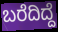
ಬರೆದಿದ್ದೆ